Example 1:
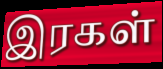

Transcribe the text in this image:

இரகள்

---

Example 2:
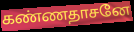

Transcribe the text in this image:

கண்ணதாசனே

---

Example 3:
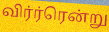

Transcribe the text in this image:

விர்ர்ரென்று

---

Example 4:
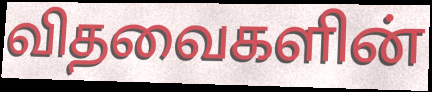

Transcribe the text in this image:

விதவைகளின்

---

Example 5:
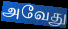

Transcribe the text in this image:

அவேது